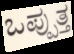
ಒಪ್ಪುತ್ತ